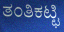
ತಂತಿಕಟ್ಟಿ